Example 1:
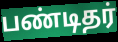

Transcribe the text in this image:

பண்டிதர்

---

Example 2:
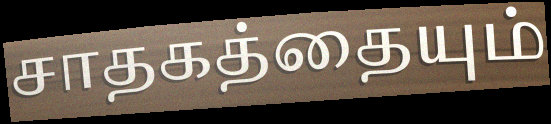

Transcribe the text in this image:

சாதகத்தையும்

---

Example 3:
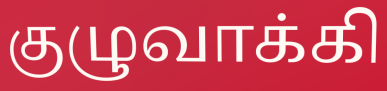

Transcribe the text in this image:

குழுவாக்கி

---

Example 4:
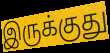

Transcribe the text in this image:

இருக்குது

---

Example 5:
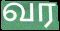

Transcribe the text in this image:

வர